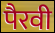
पैरवी